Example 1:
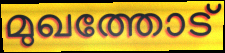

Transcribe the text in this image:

മുഖത്തോട്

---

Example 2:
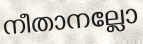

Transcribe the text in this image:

നീതാനല്ലോ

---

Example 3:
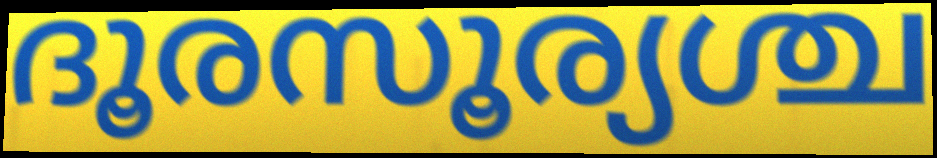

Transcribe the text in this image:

ദൂരസൂര്യശ്ച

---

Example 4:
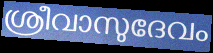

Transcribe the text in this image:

ശ്രീവാസുദേവം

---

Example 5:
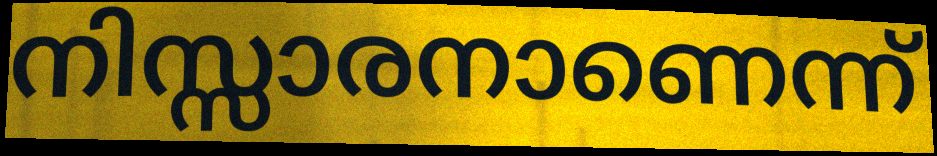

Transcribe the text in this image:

നിസ്സാരനാണെന്ന്